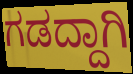
ಗಡದ್ದಾಗಿ